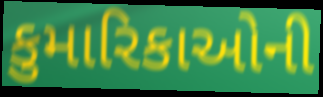
કુમારિકાઓની